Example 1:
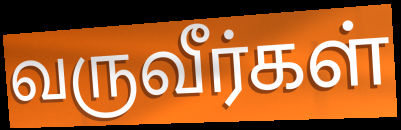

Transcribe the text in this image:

வருவீர்கள்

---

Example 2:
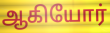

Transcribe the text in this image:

ஆகியோர்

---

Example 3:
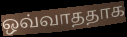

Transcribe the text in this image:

ஒவ்வாததாக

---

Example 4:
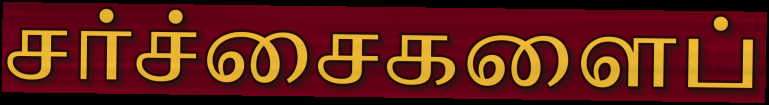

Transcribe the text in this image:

சர்ச்சைகளைப்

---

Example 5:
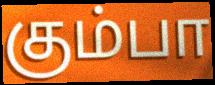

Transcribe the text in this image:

கும்பா